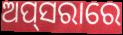
ଅପ୍‌ସରାରେ